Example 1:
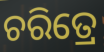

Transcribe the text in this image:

ଚରିତ୍ରେ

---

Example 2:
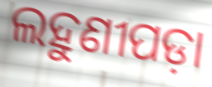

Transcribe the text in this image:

ଲହୁଣୀପଡ଼ା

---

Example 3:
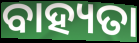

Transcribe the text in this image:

ବାହ୍ୟତା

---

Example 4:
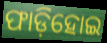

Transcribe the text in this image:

ଫାଡ଼ିହୋଇ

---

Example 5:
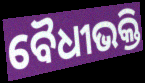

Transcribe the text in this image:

ବୈଧୀଭକ୍ତି